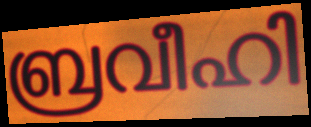
ബ്രവീഹി